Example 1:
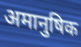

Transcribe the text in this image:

अमानुषिक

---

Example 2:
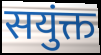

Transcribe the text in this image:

सयुंक्त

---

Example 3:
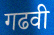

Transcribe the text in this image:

गढवी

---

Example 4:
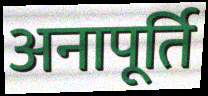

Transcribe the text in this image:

अनापूर्ति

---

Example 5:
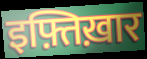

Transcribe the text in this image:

इफ़्तिख़ार